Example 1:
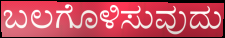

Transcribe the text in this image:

ಬಲಗೊಳಿಸುವುದು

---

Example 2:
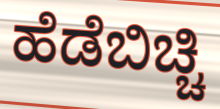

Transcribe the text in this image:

ಹೆಡೆಬಿಚ್ಚಿ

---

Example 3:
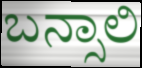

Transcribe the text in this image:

ಬನ್ಸಾಲಿ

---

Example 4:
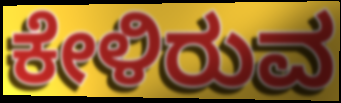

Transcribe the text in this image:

ಕೇಳಿರುವ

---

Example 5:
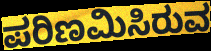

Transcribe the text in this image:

ಪರಿಣಮಿಸಿರುವ